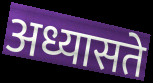
अध्यासते